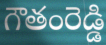
గౌతంరెడ్డి